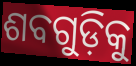
ଶବଗୁଡ଼ିକୁ